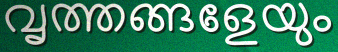
വൃത്തങ്ങളേയും